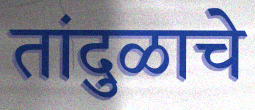
तांदुळाचे